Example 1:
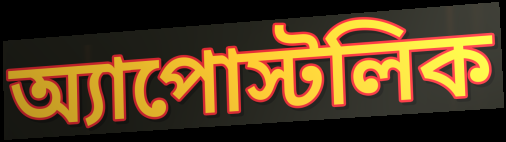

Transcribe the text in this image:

অ্যাপোস্টলিক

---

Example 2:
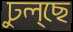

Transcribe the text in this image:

ঢুল্‌ছে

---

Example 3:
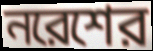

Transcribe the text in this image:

নরেশের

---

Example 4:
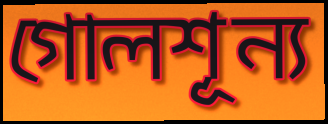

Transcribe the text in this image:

গোলশূন্য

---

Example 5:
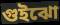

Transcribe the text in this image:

গুইঝো